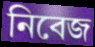
নিবেজ